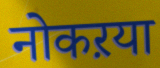
नोकऱया